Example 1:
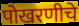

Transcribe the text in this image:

पोखरणीचे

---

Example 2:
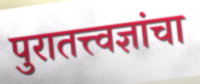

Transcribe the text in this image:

पुरातत्त्वज्ञांचा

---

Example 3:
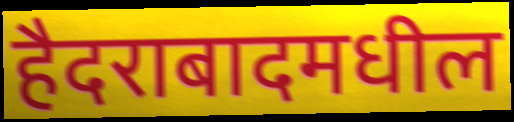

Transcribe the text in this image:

हैदराबादमधील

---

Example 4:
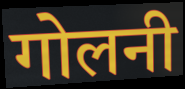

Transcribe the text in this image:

गोलनी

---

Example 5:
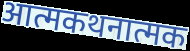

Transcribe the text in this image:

आत्मकथनात्मक